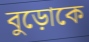
বুড়োকে